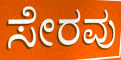
ಸೇರವು